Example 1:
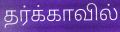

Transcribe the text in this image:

தர்க்காவில்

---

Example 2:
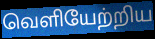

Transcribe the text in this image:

வெளியேற்றிய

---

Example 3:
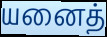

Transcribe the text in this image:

யனைத்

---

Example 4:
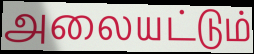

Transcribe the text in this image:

அலையட்டும்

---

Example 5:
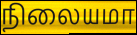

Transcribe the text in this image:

நிலையமா